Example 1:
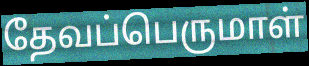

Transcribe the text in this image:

தேவப்பெருமாள்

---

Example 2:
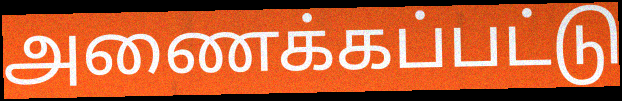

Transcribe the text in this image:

அணைக்கப்பட்டு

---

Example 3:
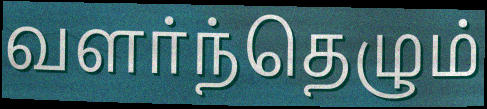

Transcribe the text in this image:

வளர்ந்தெழும்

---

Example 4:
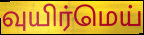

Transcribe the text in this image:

வுயிர்மெய்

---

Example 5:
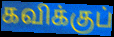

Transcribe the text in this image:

கவிக்குப்